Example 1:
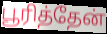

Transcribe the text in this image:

பூரித்தேன்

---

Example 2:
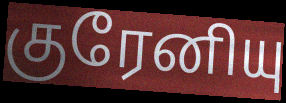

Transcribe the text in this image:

குரேனியு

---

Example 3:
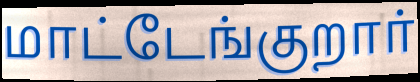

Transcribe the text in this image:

மாட்டேங்குறார்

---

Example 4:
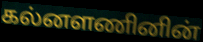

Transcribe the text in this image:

கல்னளணினின்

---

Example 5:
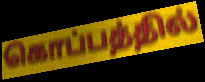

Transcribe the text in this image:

கொப்பத்தில்